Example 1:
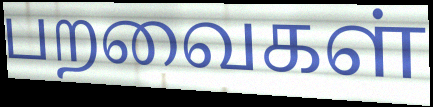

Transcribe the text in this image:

பறவைகள்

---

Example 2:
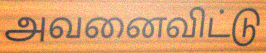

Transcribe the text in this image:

அவனைவிட்டு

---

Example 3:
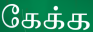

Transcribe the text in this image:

கேக்க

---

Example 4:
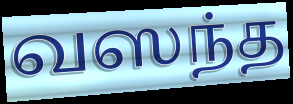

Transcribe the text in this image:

வஸந்த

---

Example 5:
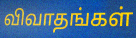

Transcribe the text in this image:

விவாதங்கள்